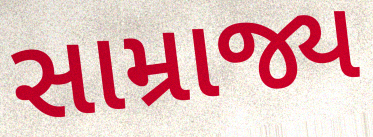
સામ્રાજ્ય